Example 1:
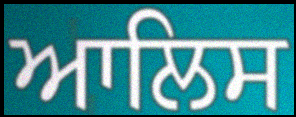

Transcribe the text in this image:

ਆਲਿਸ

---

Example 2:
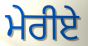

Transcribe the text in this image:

ਮੇਰੀਏ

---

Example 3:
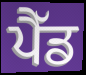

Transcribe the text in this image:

ਪੈੱਡ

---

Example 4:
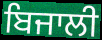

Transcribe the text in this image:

ਬਿਜਾਲੀ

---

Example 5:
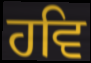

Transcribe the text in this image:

ਹਵਿ